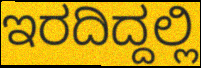
ಇರದಿದ್ದಲ್ಲಿ